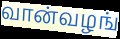
வான்வழங்